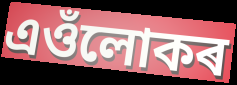
এওঁলোকৰ